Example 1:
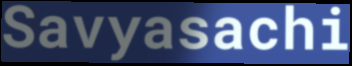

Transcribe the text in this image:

Savyasachi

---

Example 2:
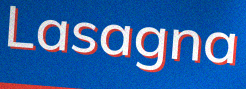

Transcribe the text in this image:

Lasagna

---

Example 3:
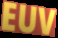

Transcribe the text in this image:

EUV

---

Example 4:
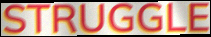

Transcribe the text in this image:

STRUGGLE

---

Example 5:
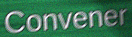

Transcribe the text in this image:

Convener